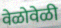
वेळोवेळी